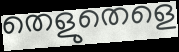
തെളുതെളെ